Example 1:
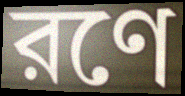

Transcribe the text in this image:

রণে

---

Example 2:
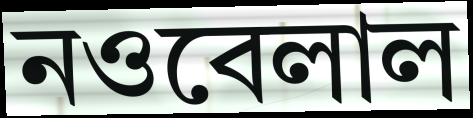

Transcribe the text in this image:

নওবেলাল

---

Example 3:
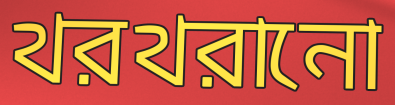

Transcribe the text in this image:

থরথরানো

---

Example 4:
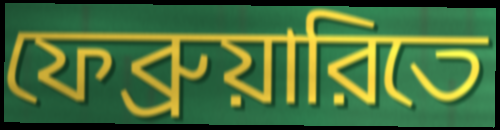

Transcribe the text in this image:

ফেব্রুয়ারিতে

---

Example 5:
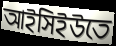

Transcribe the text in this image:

আইসিইউতে